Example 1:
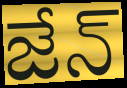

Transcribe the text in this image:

జేన్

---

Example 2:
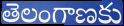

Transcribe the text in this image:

తెలంగాణకు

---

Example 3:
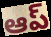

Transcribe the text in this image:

ఆప్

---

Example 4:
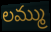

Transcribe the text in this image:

లమ్ము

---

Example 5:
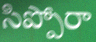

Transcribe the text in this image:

సిప్పోరా